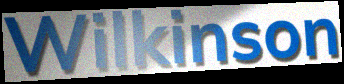
Wilkinson